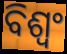
ବିଶ୍ୱଂ